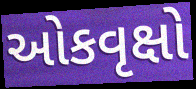
ઓકવૃક્ષો